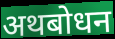
अथबोधन